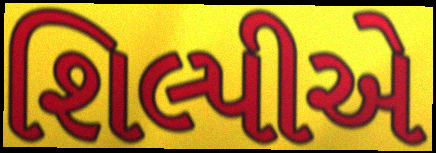
શિલ્પીએ